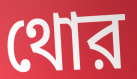
থোর